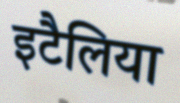
इटैलिया